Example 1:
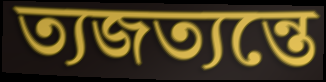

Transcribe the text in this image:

ত্যজত্যন্তে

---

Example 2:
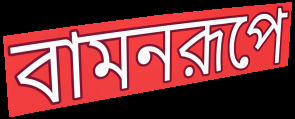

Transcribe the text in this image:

বামনরূপে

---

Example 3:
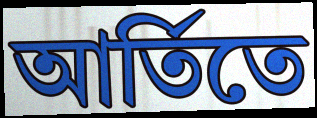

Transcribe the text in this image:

আর্তিতে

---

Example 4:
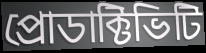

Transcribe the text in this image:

প্রোডাক্টিভিটি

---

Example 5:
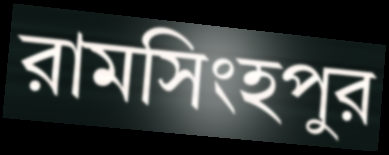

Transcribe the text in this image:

রামসিংহপুর